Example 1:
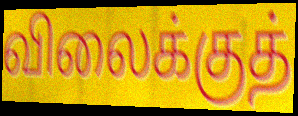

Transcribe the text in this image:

விலைக்குத்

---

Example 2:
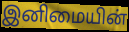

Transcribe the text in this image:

இனிமையின்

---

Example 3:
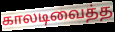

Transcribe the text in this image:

காலடிவைத்த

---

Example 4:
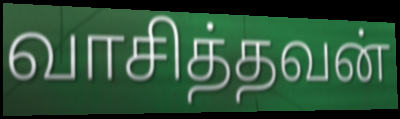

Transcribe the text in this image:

வாசித்தவன்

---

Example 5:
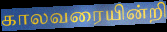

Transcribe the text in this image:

காலவரையின்றி